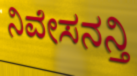
ನಿವೇಸನನ್ತಿ